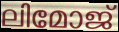
ലിമോജ്